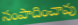
సంపాదించావు